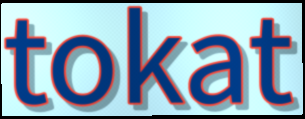
tokat